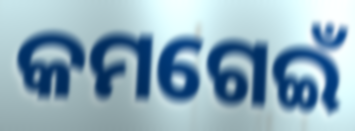
କମଗେଇଁ